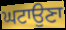
ਘਟਾਉਣਾ